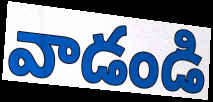
వాడండి